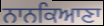
ਨਾਨਕਿਆਣਾ